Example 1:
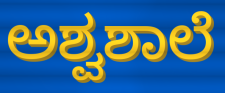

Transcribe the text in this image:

ಅಶ್ವಶಾಲೆ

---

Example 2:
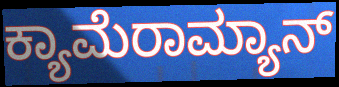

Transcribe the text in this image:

ಕ್ಯಾಮೆರಾಮ್ಯಾನ್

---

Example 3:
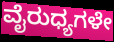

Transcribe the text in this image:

ವೈರುಧ್ಯಗಳೇ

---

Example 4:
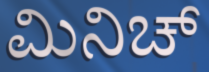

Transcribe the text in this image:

ಮಿನಿಚ್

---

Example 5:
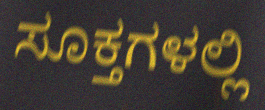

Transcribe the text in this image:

ಸೂಕ್ತಗಳಲ್ಲಿ